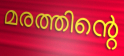
മരത്തിന്റെ